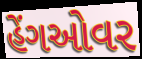
હેંગઓવર